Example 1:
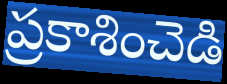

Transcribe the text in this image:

ప్రకాశించెడి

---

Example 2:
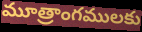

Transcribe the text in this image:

మూత్రాంగములకు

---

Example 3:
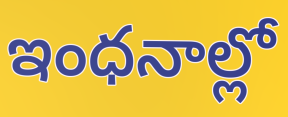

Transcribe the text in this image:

ఇంధనాల్లో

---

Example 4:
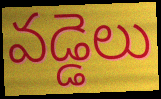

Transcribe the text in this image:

వడ్డెలు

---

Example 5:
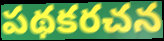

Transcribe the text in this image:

పథకరచన